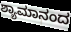
ಶ್ಯಾಮಾನಂದ